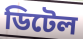
ডিটেল